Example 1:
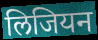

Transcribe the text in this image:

लिजियन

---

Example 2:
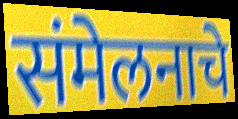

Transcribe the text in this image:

संमेलनाचे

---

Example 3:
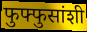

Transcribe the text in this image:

फुफ्फुसांशी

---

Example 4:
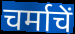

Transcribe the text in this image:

चर्माचें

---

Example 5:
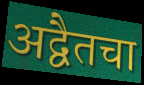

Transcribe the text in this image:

अद्वैतचा